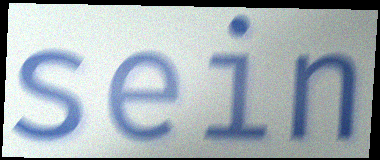
sein